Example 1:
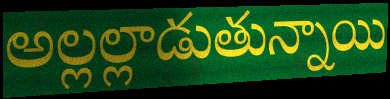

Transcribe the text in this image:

అల్లల్లాడుతున్నాయి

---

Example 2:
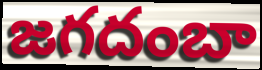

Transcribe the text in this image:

జగదంబా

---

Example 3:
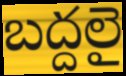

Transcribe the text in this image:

బద్దలై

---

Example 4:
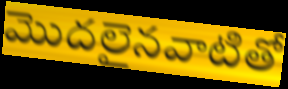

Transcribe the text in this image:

మొదలైనవాటితో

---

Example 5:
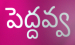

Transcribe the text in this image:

పెద్దవ్వ